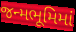
જન્મભૂમિમાં